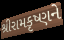
શ્રીરામકૃષ્ણને